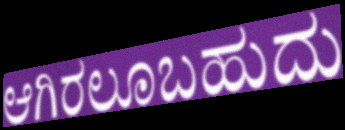
ಆಗಿರಲೂಬಹುದು